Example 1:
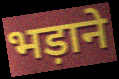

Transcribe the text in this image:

भड़ाने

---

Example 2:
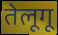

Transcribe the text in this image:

तेलूगू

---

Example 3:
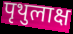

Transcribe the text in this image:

पृथुलाक्ष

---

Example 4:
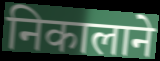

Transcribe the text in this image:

निकालाने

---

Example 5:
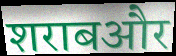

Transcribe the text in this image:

शराबऔर